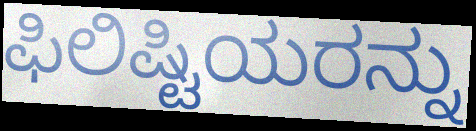
ಫಿಲಿಷ್ಟಿಯರನ್ನು